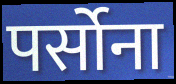
पर्सोना